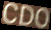
CDO